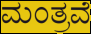
ಮಂತ್ರವೆ